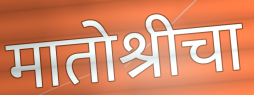
मातोश्रीचा